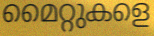
മൈറ്റുകളെ